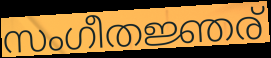
സംഗീതജ്ഞര്